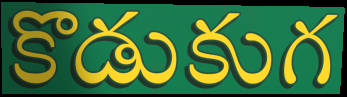
కొడుకుగ